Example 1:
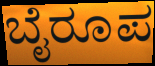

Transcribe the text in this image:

ಬೈರೂಪ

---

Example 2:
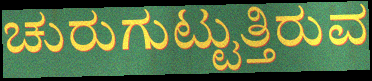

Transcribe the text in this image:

ಚುರುಗುಟ್ಟುತ್ತಿರುವ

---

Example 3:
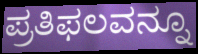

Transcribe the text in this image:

ಪ್ರತಿಫಲವನ್ನೂ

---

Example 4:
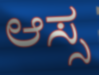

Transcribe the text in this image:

ಆಸ್ಸ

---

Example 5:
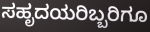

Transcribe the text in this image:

ಸಹೃದಯರಿಬ್ಬರಿಗೂ